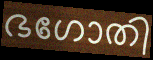
ഭഗോതി